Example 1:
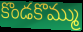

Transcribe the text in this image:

కొండకొమ్ము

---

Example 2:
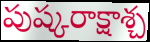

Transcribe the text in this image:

పుష్కరాక్షాశ్చ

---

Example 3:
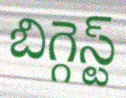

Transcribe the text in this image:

బిగ్గెస్ట్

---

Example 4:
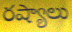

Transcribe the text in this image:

రష్యాలు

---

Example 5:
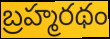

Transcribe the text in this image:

బ్రహ్మరథం